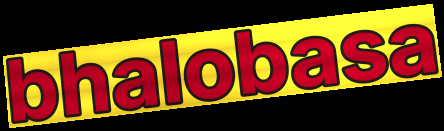
bhalobasa